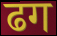
ढग